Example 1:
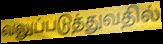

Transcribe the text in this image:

வலுப்படுத்துவதில்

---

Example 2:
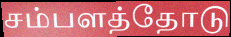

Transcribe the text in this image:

சம்பளத்தோடு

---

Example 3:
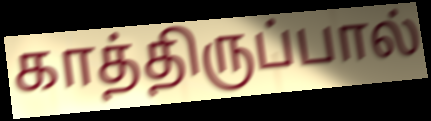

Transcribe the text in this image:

காத்திருப்பால்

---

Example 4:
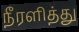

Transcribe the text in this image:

நீரளித்து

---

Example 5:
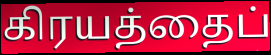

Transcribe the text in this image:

கிரயத்தைப்